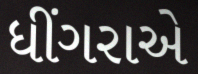
ધીંગરાએ